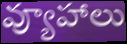
వ్యూహాలు